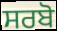
ਸਰਬੋ